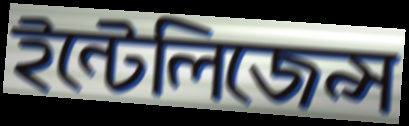
ইন্টেলিজেন্স